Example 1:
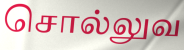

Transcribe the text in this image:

சொல்லுவ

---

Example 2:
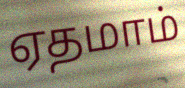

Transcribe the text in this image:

ஏதமாம்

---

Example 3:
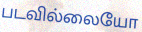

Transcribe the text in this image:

படவில்லையோ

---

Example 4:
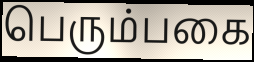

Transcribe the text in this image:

பெரும்பகை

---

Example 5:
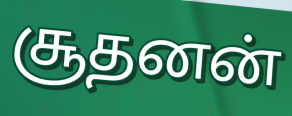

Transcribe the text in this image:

சூதனன்